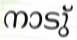
നാടു്